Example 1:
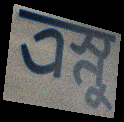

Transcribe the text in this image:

ত্রস্নু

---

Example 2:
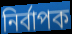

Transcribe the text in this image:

নির্বাপক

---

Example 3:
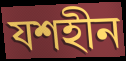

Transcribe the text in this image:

যশহীন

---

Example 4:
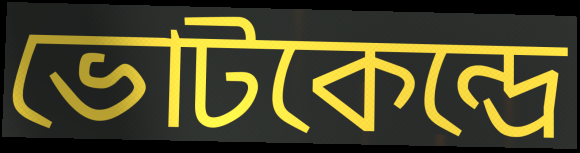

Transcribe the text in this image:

ভোটকেন্দ্রে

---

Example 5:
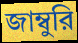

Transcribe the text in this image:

জাম্বুরি